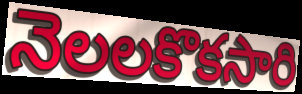
నెలలకొకసారి